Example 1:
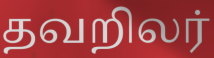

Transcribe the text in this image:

தவறிலர்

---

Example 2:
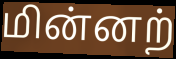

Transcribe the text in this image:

மின்னற்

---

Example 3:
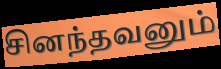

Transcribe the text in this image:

சினந்தவனும்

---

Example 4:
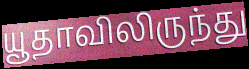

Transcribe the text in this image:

யூதாவிலிருந்து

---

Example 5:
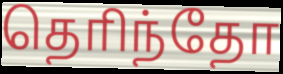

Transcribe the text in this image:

தெரிந்தோ